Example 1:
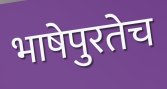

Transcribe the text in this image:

भाषेपुरतेच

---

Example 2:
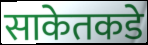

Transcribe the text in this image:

साकेतकडे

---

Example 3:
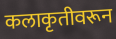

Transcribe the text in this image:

कलाकृतीवरून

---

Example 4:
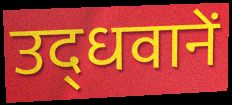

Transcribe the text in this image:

उद्धवानें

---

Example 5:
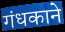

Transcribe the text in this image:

गंधकाने